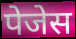
पेजेस